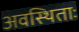
अवस्थिताः